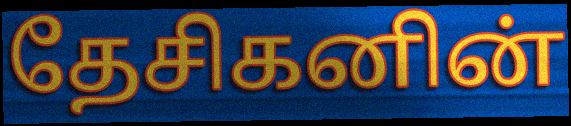
தேசிகனின்